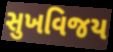
સુખવિજય